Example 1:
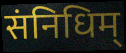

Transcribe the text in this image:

संनिधिम्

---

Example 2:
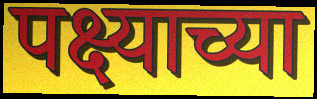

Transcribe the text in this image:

पक्ष्याच्या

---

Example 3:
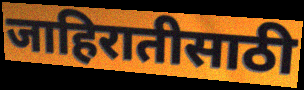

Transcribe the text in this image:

जाहिरातीसाठी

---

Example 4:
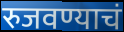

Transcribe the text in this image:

रुजवण्याचं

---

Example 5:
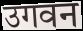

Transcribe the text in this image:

उगवन